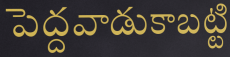
పెద్దవాడుకాబట్టి